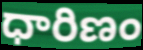
ధారిణం